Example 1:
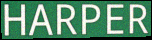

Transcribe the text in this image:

HARPER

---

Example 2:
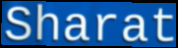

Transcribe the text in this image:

Sharat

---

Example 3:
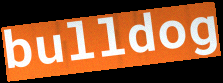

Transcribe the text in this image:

bulldog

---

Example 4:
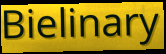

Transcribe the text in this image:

Bielinary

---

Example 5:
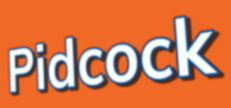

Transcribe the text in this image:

Pidcock